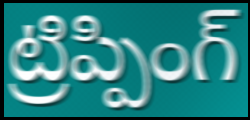
ట్రిప్పింగ్